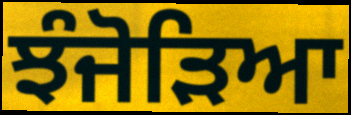
ਝੰਜੋੜਿਆ